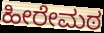
ಹೀರೇಮಠ